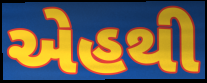
એહથી